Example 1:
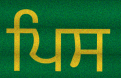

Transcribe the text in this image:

ਪਿਸ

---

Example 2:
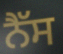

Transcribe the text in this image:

ਨੈੱਸ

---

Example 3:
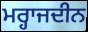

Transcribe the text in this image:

ਮਰ੍ਹਾਜਦੀਨ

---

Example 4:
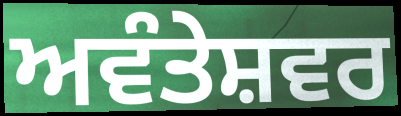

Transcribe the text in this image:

ਅਵੰਤੇਸ਼ਵਰ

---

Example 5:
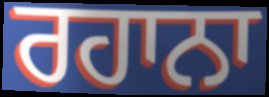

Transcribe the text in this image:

ਰਹਾਨਾ